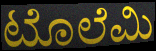
ಟೊಲೆಮಿ